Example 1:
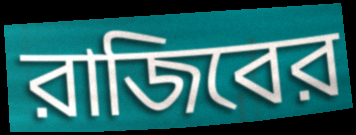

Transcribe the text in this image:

রাজিবের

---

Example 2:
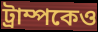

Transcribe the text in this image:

ট্রাম্পকেও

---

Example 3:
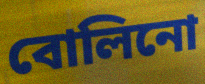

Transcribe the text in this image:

বোলিনো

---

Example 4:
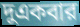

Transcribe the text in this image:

দুএকবার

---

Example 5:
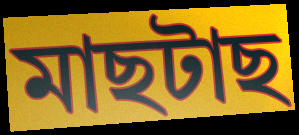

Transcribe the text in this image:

মাছটাছ